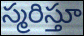
స్మరిస్తూ